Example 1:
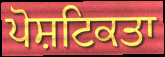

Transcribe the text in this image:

ਪੋਸ਼ਟਿਕਤਾ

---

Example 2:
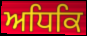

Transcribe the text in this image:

ਅਧਿਕਿ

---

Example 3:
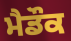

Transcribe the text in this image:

ਮੈਡੌਕ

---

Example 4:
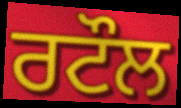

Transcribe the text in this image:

ਰਟੌਲ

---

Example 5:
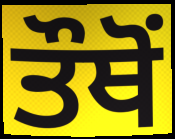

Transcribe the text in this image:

ਤੌਥੋਂ